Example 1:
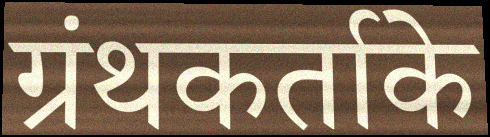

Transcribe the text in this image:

ग्रंथकर्ताके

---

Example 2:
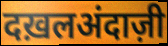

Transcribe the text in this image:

दख़लअंदाज़ी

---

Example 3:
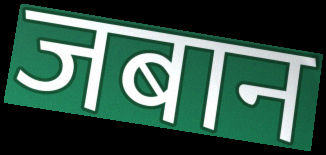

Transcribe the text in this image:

जबान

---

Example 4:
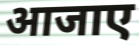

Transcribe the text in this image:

आजाए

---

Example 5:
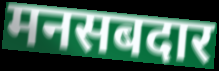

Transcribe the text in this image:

मनसबदार